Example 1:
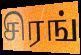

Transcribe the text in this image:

சிரங்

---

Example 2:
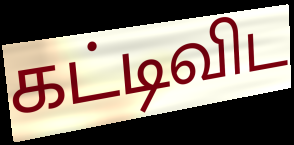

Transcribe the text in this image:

கட்டிவிட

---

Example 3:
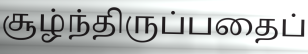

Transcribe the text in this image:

சூழ்ந்திருப்பதைப்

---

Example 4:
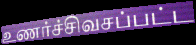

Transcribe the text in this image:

உணர்ச்சிவசப்பட்ட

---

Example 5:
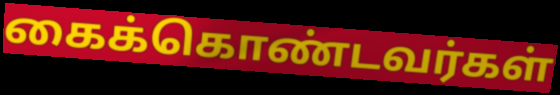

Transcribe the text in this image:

கைக்கொண்டவர்கள்